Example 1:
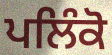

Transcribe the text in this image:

ਪਲਿੰਕੋ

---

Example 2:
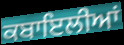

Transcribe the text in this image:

ਕਬਾਇਲੀਆਂ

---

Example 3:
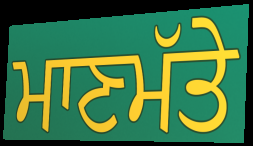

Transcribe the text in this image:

ਮਾਣਮੱਤੇ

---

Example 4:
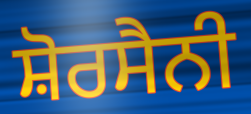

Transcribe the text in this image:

ਸ਼ੋਰਸੈਨੀ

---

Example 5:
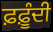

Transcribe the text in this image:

ਫ਼ਫ਼ੂੰਦੀ